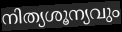
നിത്യശൂന്യവും